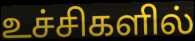
உச்சிகளில்